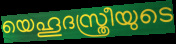
യെഹൂദസ്ത്രീയുടെ